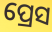
ପ୍ରେସ